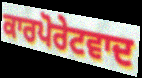
ਕਾਰਪੋਰੇਟਵਾਦ